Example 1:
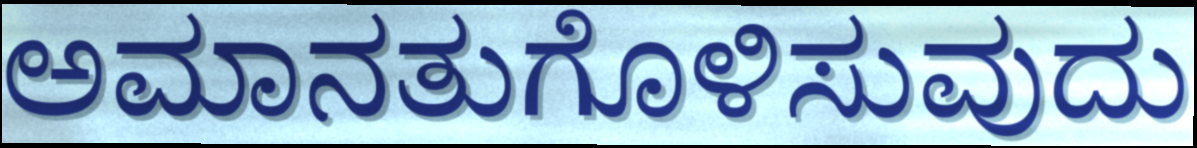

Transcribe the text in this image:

ಅಮಾನತುಗೊಳಿಸುವುದು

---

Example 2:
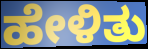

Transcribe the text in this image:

ಹೇಳಿತು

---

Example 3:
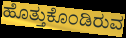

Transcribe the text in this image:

ಹೊತ್ತುಕೊಂಡಿರುವ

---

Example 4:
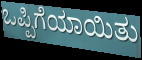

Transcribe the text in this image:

ಒಪ್ಪಿಗೆಯಾಯಿತು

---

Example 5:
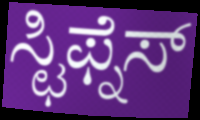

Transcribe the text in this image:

ಸ್ಟಿಫ್ನೆಸ್